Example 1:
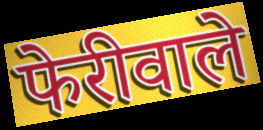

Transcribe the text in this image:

फेरीवाले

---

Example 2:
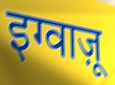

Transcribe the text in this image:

इग्वाज़ू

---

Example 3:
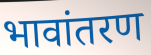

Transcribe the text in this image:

भावांतरण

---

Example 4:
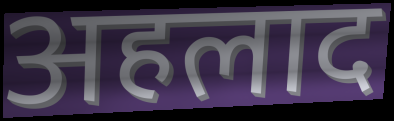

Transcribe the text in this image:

अहलाद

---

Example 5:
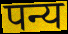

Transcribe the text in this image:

पन्य